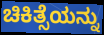
ಚಿಕಿತ್ಸೆಯನ್ನು